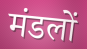
मंडलों